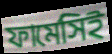
ফার্মেসিই